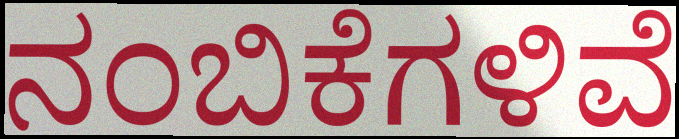
ನಂಬಿಕೆಗಳಿವೆ